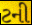
ટની